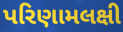
પરિણામલક્ષી